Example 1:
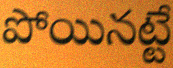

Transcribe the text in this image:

పోయినట్టే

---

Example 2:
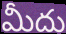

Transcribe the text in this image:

మీదు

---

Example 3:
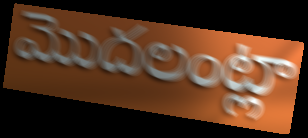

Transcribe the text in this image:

మొదలంట్లా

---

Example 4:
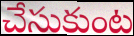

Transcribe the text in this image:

చేసుకుంట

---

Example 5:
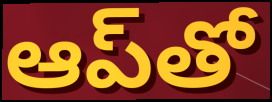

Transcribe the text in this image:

ఆప్‌తో